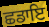
ਛਡਾਇ